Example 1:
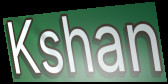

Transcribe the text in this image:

Kshan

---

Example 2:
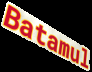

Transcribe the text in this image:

Batamul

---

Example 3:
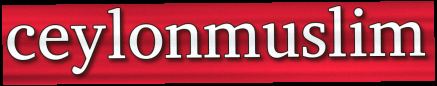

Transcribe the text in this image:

ceylonmuslim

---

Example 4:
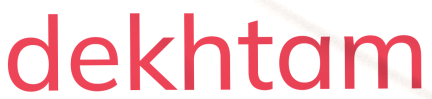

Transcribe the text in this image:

dekhtam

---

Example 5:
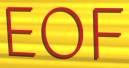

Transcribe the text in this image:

EOF